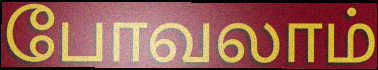
போவலாம்